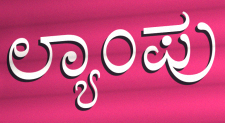
ಲ್ಯಾಂಪು